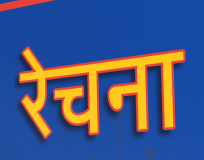
रेचना